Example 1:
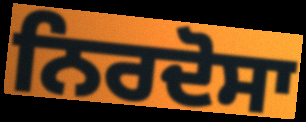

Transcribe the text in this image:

ਨਿਰਦੋਸਾ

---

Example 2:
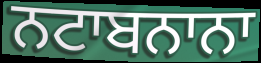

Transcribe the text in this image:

ਨਟਾਬਨਾਨਾ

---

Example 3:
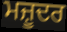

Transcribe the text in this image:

ਮਜ਼ੂਦਰ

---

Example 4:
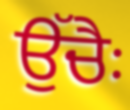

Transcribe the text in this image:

ਉੱਚੈਃ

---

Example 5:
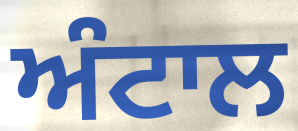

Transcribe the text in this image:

ਅੰਟਾਲ